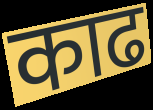
काढ